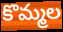
కొమ్మల